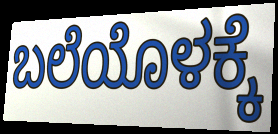
ಬಲೆಯೊಳಕ್ಕೆ